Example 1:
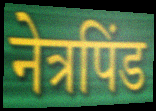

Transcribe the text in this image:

नेत्रपिंड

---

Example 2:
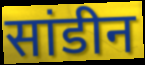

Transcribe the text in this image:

सांडीन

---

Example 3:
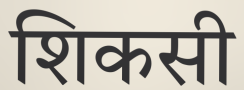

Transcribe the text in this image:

शिकसी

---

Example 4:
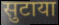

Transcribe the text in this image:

सुटाया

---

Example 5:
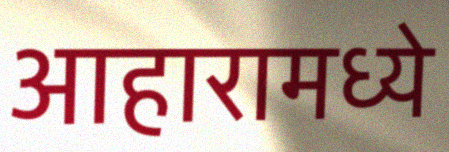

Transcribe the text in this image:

आहारामध्ये